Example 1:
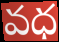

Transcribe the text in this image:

వధ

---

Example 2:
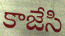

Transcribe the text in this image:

కాజేసి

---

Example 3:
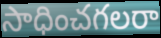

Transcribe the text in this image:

సాధించగలరా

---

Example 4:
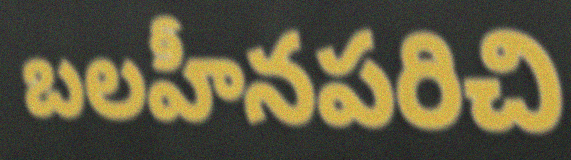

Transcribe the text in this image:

బలహీనపరిచి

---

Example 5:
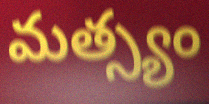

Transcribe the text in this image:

మత్స్యం